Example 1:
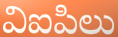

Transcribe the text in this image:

విఐపిలు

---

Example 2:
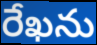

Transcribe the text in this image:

రేఖను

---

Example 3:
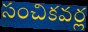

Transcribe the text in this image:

సంచికవర్ల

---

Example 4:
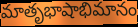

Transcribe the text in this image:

మాతృభాషాభిమానం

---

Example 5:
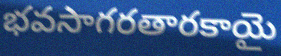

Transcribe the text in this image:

భవసాగరతారకాయై